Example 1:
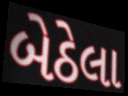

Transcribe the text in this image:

બેઠેલા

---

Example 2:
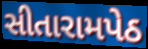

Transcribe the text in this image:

સીતારામપેઠ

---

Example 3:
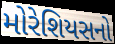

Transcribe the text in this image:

મોરેશિયસનો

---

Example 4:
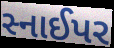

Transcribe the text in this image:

સ્નાઈપર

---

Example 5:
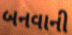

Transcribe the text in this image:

બનવાની